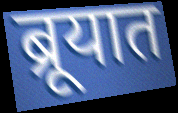
ब्रूयात